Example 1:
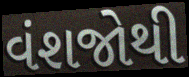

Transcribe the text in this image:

વંશજોથી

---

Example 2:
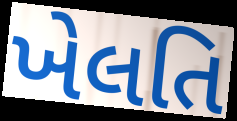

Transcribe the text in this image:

ખેલતિ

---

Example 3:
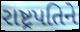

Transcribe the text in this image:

રાષ્ટ્રપતિને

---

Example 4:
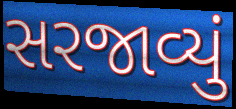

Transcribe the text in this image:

સરજાવ્યું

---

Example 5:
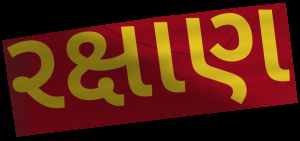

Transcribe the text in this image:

રક્ષાણ